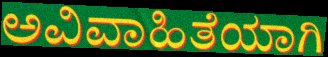
ಅವಿವಾಹಿತೆಯಾಗಿ